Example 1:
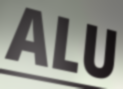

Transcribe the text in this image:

ALU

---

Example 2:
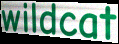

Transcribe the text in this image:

wildcat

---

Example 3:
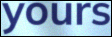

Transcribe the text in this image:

yours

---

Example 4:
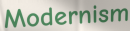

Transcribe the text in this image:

Modernism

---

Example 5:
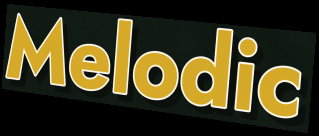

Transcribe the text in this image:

Melodic